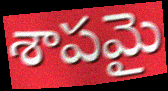
శాపమై